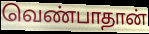
வெண்பாதான்